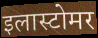
इलास्टोमर